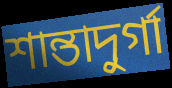
শান্তাদুর্গা